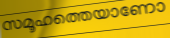
സമൂഹത്തെയാണോ